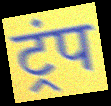
ट्रंप